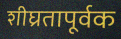
शीघ्रतापूर्वक